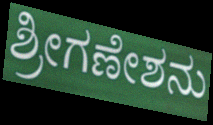
ಶ್ರೀಗಣೇಶನು